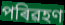
পৰিৱহণ